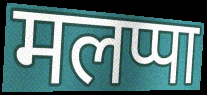
मलप्पा